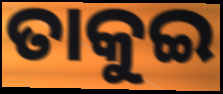
ତାକୁଇ